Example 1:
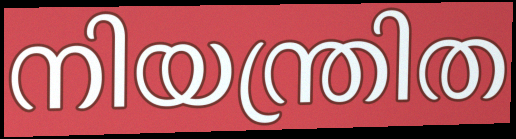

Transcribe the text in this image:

നിയന്ത്രിത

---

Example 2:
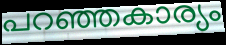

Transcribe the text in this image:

പറഞ്ഞകാര്യം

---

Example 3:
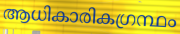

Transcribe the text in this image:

ആധികാരികഗ്രന്ഥം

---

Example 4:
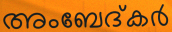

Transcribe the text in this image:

അംബേദ്കർ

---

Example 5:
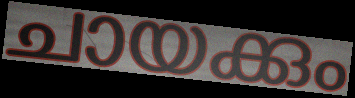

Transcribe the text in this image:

ചായക്കും